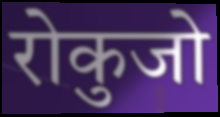
रोकुजो